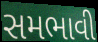
સમભાવી